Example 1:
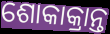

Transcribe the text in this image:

ଶୋକାକ୍ରାନ୍ତ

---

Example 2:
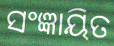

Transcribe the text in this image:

ସଂଜ୍ଞାୟିତ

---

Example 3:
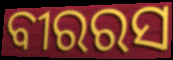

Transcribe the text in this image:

ବୀରରସ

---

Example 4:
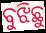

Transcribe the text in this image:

ବୁଝିଛୁ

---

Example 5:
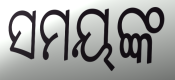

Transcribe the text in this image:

ସମୟଙ୍କ